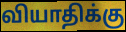
வியாதிக்கு